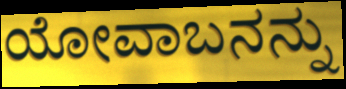
ಯೋವಾಬನನ್ನು